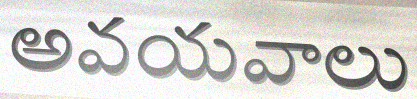
అవయవాలు